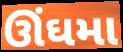
ઊંઘમા